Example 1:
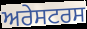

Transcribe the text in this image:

ਅਰੇਸਟਰਸ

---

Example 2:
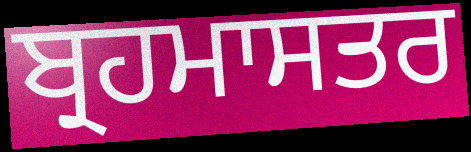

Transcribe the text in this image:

ਬ੍ਰਹਮਾਸਤਰ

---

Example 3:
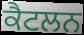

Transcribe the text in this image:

ਕੈਟਲਨ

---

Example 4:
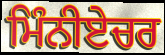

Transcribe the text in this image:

ਮਿੰਨੀਏਚਰ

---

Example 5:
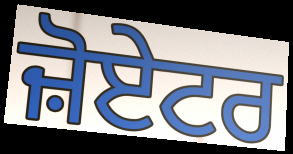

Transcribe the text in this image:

ਜ਼ੋਏਟਰ